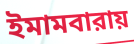
ইমামবারায়